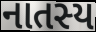
નાતસ્ય